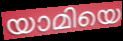
യാമിയെ